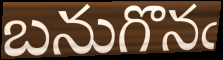
బనుగొనఁ